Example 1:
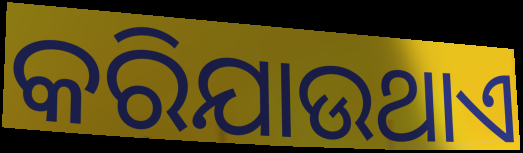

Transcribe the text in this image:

କରିଯାଉଥାଏ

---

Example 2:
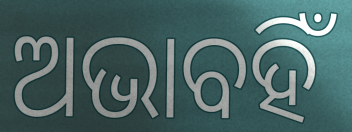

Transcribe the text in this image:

ଅଭାବହିଁ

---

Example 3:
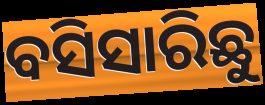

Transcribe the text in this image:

ବସିସାରିଛୁ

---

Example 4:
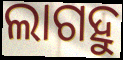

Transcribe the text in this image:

ଲାଗହୁ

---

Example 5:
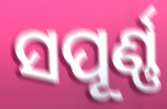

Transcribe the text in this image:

ସପୂର୍ଣ୍ଣ